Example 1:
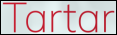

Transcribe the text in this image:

Tartar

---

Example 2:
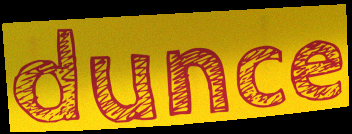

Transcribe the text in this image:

dunce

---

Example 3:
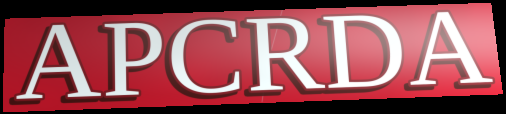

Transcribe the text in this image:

APCRDA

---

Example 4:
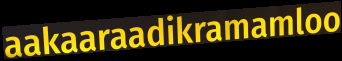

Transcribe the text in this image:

aakaaraadikramamloo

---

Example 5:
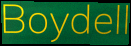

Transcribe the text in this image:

Boydell